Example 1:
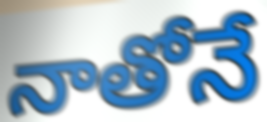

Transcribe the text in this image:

నాతోనే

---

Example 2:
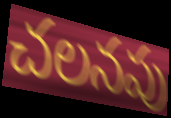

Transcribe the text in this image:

చలనపు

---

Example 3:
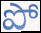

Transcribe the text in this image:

పో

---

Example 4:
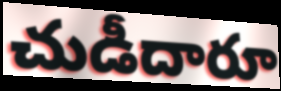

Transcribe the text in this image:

చుడీదారూ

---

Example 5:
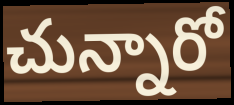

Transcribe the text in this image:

చున్నారో